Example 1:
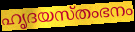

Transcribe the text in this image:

ഹൃദയസ്തംഭനം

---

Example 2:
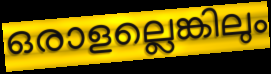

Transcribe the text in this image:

ഒരാളല്ലെങ്കിലും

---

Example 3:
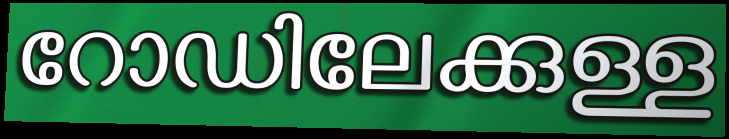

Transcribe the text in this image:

റോഡിലേക്കുള്ള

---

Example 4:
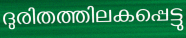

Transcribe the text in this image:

ദുരിതത്തിലകപ്പെട്ടു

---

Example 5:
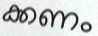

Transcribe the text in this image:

ക്കണം